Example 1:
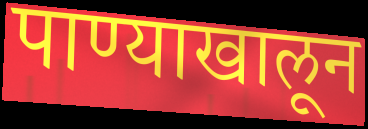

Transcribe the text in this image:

पाण्याखालून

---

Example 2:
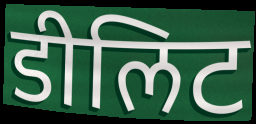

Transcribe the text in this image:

डीलिट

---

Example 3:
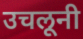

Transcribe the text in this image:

उचलूनी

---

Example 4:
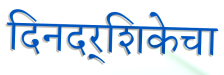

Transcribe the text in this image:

दिनदर्शिकेचा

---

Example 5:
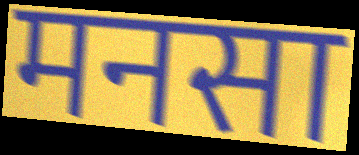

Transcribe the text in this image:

मनसा